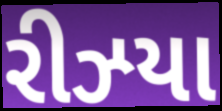
રીઝ્યા